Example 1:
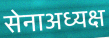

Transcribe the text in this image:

सेनाअध्यक्ष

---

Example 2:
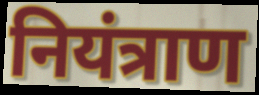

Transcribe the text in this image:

नियंत्राण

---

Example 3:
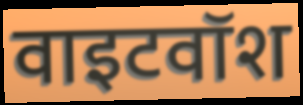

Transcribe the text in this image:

वाइटवॉश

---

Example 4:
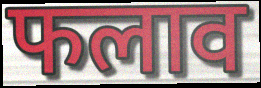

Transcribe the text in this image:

फलाव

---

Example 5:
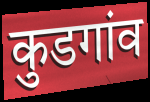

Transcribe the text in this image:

कुडगांव